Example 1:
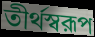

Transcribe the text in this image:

তীর্থস্বরূপ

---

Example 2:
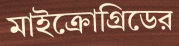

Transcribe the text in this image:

মাইক্রোগ্রিডের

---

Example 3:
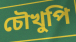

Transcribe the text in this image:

চৌখুপি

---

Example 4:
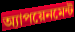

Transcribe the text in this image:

অ্যাপয়েনমেন্ট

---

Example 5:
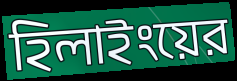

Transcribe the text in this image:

হিলাইংয়ের